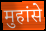
मुहांसे